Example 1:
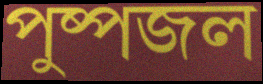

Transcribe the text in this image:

পুষ্পজল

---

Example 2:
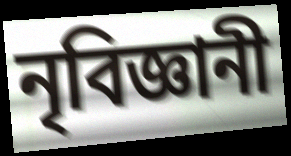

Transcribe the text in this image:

নৃবিজ্ঞানী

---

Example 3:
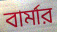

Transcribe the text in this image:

বার্মার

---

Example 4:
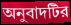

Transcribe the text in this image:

অনুবাদটির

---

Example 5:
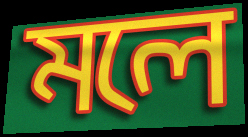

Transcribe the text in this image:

মলে